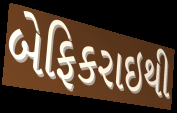
બેફિકરાઇથી